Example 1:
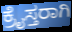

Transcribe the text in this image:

ಕ್ರೈಸ್ತರಾಗಿ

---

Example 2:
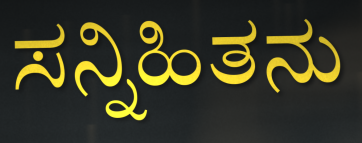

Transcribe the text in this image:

ಸನ್ನಿಹಿತನು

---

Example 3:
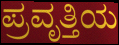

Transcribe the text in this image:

ಪ್ರವೃತ್ತಿಯ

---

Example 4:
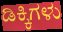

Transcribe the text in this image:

ಡಿಕ್ಕಿಗಳು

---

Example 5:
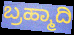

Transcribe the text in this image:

ಬ್ರಹ್ಮಾದಿ